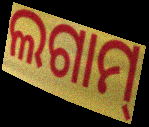
ଲଗାମ୍